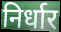
निर्धार